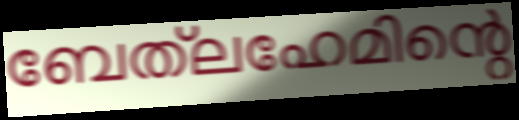
ബേത്‌ലഹേമിന്റെ